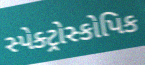
સ્પેક્ટ્રોસ્કોપિક